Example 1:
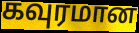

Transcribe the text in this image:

கவுரமான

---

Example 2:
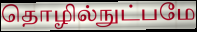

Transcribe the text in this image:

தொழில்நுட்பமே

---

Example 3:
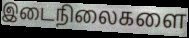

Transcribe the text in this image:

இடைநிலைகளை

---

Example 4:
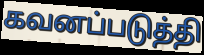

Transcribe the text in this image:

கவனப்படுத்தி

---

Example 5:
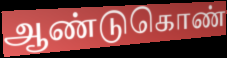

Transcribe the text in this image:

ஆண்டுகொண்